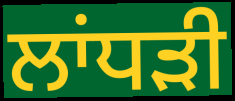
ਲਾਂਧੜੀ